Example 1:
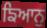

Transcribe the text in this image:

ਙਿਆਨੁ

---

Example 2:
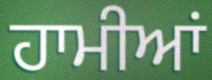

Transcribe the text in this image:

ਹਾਮੀਆਂ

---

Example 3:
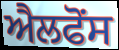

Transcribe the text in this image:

ਐਲਫੋਂਸ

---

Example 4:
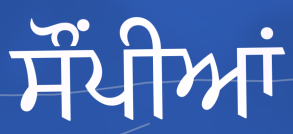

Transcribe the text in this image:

ਸੌਂਪੀਆਂ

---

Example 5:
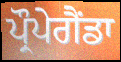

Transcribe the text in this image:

ਪ੍ਰੌਪੇਗੈਂਡਾ